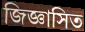
জিজ্ঞাসিত